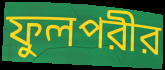
ফুলপরীর